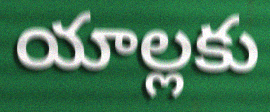
యాల్లకు